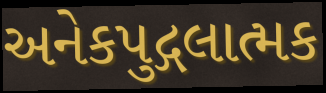
અનેકપુદ્ગલાત્મક